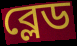
ব্লেড